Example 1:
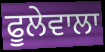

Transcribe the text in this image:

ਫੂਲੇਵਾਲਾ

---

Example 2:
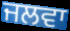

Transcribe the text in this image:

ਜਲਵਾ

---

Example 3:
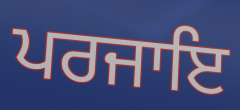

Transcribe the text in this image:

ਪਰਜਾਇ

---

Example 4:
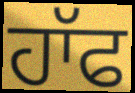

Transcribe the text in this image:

ਹਾੱਫ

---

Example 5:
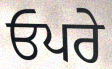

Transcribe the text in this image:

ਓਪਰੇ